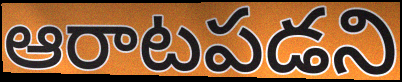
ఆరాటపడని